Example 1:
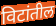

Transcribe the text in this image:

विटांतील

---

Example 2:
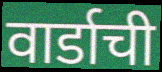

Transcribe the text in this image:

वार्डाची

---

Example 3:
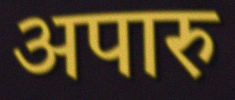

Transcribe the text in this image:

अपारु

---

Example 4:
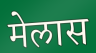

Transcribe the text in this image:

मेलास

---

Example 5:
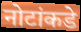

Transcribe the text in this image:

नोटांकडे